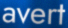
avert